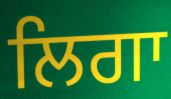
ਲਿਗਾ